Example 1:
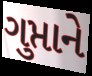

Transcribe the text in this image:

ગુપ્તાને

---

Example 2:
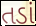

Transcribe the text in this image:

તડાં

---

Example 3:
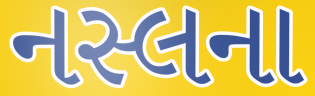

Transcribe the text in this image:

નસ્લના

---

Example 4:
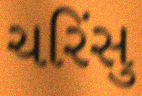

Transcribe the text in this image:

ચરિંસુ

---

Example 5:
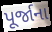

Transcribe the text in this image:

પૂર્જાના